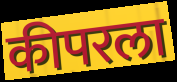
कीपरला